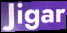
Jigar